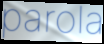
parola